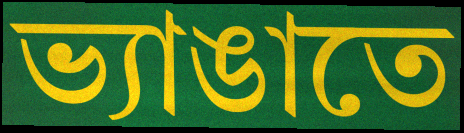
ভ্যাঙাতে